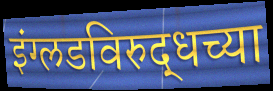
इंग्लडविरुद्धच्या